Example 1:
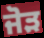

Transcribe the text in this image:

ਜੋੜ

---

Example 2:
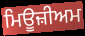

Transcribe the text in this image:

ਮਿਊਜ਼ੀਅਮ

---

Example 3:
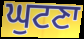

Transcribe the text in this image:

ਘੁਟਣਾ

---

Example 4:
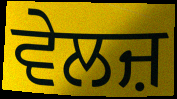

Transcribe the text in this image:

ਵੇਲਜ਼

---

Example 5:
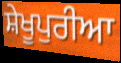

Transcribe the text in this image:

ਸ਼ੇਖੂਪੁਰੀਆ